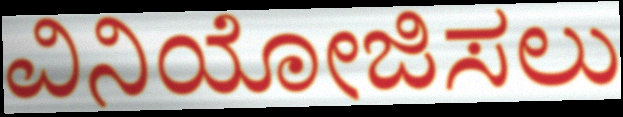
ವಿನಿಯೋಜಿಸಲು